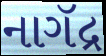
નાગૅદ્ર